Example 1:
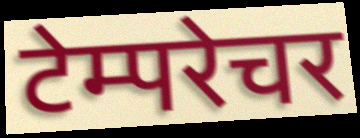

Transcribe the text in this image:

टेम्परेचर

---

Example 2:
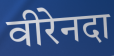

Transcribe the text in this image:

वीरेनदा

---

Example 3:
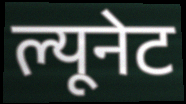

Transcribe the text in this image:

ल्यूनेट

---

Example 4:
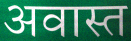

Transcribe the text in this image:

अवास्त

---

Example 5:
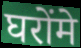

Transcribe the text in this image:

घरोंमे